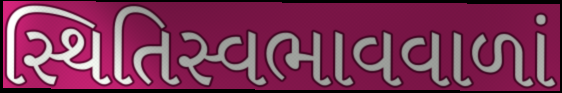
સ્થિતિસ્વભાવવાળાં